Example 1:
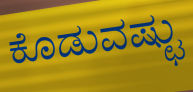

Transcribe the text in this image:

ಕೊಡುವಷ್ಟು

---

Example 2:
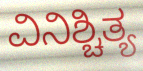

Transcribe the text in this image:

ವಿನಿಶ್ಚಿತ್ಯ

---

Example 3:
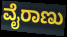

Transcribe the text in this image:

ವೈರಾಣು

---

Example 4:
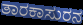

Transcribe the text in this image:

ತಾರಕಾಸುರನ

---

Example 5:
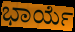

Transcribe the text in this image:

ಭಾರ್ಯೆ